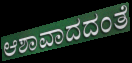
ಆಶಾವಾದದಂತೆ